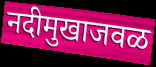
नदीमुखाजवळ